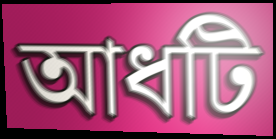
আধটি